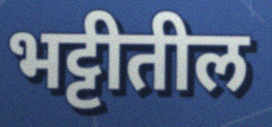
भट्टीतील